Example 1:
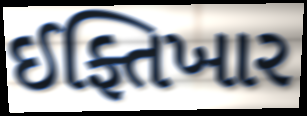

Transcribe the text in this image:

ઈફ્તિખાર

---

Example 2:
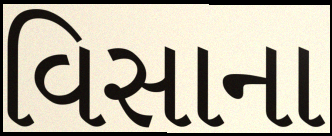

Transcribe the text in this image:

વિસાના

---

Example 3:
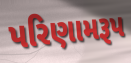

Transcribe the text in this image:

પરિણામરૂપ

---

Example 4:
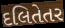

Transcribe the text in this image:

દલિતેતર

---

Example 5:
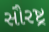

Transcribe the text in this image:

સૌરષ્ટ્ર